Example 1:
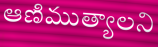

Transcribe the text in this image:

ఆణిముత్యాలని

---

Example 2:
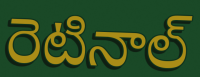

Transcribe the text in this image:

రెటినాల్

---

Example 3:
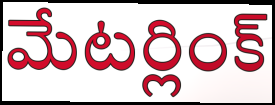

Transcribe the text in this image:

మేటర్లింక్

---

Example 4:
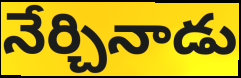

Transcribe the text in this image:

నేర్చినాడు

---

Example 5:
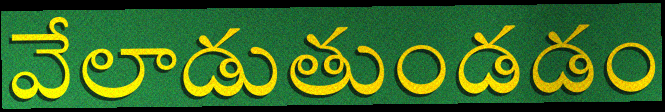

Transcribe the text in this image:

వేలాడుతుండడం